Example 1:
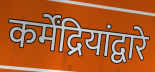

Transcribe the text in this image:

कर्मेंद्रियांद्वारे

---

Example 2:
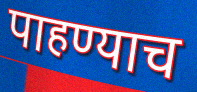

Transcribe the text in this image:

पाहण्याच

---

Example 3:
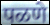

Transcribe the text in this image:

पळणे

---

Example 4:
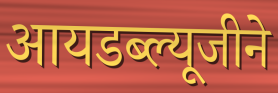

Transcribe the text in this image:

आयडब्ल्यूजीने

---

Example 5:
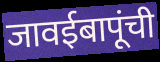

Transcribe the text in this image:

जावईबापूंची